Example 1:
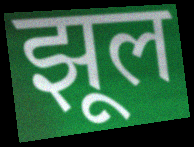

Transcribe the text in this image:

झूल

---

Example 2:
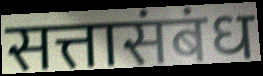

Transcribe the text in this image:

सत्तासंबंध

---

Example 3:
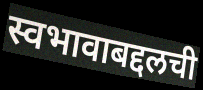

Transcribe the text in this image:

स्वभावाबद्दलची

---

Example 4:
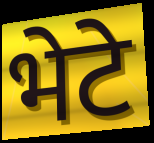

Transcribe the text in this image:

भेटे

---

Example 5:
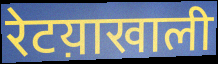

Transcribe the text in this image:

रेटय़ाखाली